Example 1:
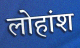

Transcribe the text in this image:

लोहांश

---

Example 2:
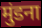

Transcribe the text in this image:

मुंडना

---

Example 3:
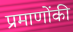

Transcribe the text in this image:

प्रमाणोंकी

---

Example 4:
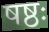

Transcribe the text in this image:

षष्ठः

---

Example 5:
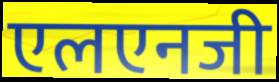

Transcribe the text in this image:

एलएनजी